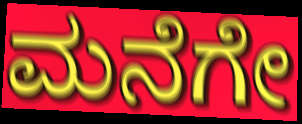
ಮನೆಗೇ